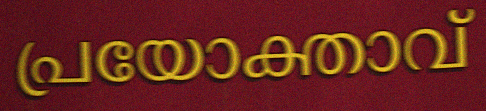
പ്രയോക്താവ്